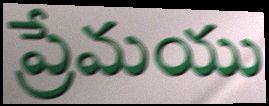
ప్రేమయు